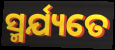
ସ୍ମର୍ଯ୍ୟତେ